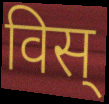
विस्